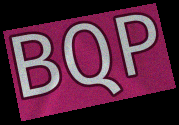
BQP